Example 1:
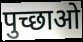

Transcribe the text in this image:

पुच्छाओ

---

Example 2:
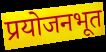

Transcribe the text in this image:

प्रयोजनभूत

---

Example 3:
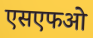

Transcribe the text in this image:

एसएफओ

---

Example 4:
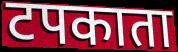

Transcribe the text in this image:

टपकाता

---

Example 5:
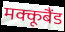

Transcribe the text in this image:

मक्कूबैंड